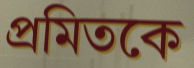
প্রমিতকে